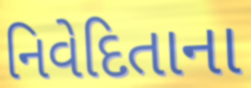
નિવેદિતાના